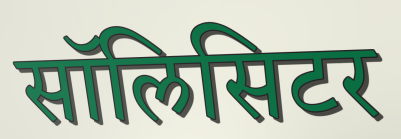
सॉलिसिटर